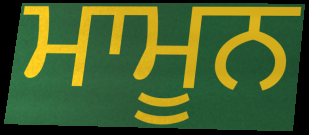
ਮਾਮੂਨ